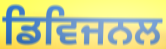
ਡਿਵਿਜਨਲ